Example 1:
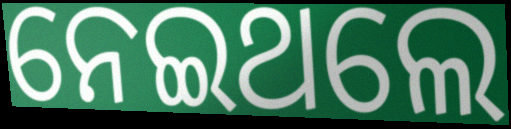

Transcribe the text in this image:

ନେଇଥଲେ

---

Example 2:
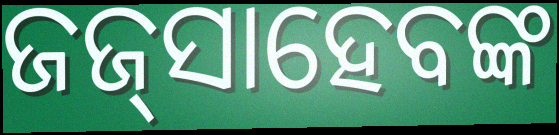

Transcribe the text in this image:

ଜଜ୍‍ସାହେବଙ୍କ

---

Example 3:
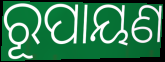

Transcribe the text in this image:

ରୂପାୟଣ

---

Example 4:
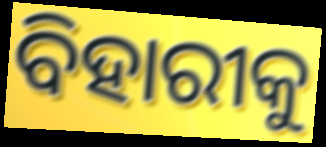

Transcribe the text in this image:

ବିହାରୀକୁ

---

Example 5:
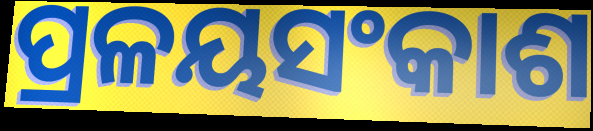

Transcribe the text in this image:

ପ୍ରଳୟସଂକାଶ